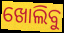
ଖୋଲିବୁ